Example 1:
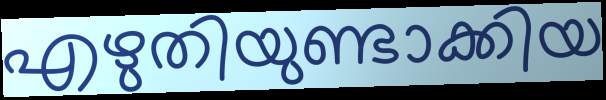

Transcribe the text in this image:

എഴുതിയുണ്ടാക്കിയ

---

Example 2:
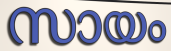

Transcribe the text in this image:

സായം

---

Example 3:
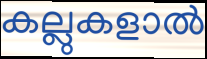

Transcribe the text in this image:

കല്ലുകളാൽ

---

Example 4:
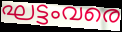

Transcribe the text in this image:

ഘട്ടംവരെ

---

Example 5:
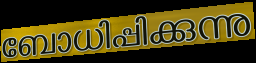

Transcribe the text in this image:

ബോധിപ്പിക്കുന്നു